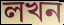
লখন